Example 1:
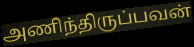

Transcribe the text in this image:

அணிந்திருப்பவன்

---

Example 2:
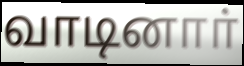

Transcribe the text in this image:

வாடினார்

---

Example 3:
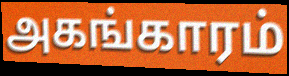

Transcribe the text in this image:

அகங்காரம்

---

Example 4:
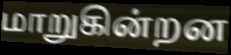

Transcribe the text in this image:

மாறுகின்றன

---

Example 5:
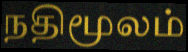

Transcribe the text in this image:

நதிமூலம்